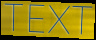
TEXT